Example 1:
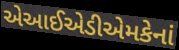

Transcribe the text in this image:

એઆઈએડીએમકેનાં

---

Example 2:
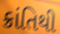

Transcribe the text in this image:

ક્રાંતિથી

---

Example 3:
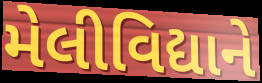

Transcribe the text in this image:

મેલીવિદ્યાને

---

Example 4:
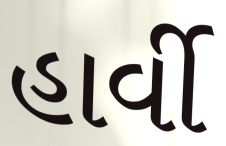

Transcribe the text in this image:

હાર્વી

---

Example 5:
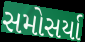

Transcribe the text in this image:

સમોસર્યા